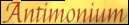
Antimonium